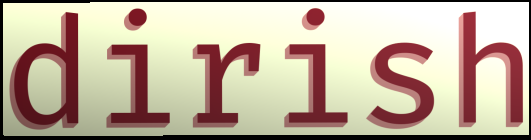
dirish